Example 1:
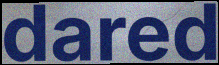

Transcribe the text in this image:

dared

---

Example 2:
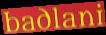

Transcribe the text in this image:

badlani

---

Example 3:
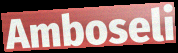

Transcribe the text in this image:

Amboseli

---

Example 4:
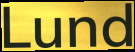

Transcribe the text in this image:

Lund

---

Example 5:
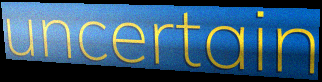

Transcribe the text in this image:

uncertain